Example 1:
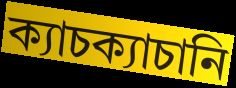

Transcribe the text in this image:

ক্যাচক্যাচানি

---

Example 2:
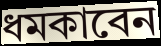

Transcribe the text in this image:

ধমকাবেন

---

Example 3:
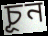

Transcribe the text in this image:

চূন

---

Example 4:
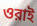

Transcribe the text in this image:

ওরাই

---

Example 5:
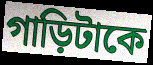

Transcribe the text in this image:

গাড়িটাকে